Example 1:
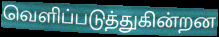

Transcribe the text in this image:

வெளிப்படுத்துகின்றன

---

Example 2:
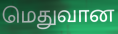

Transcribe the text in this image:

மெதுவான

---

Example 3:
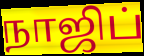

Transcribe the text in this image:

நாஜிப்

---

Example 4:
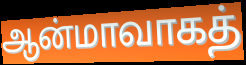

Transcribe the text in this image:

ஆன்மாவாகத்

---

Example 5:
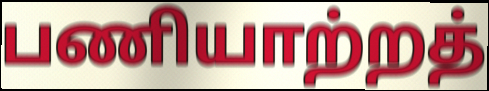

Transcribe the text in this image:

பணியாற்றத்